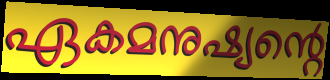
ഏകമനുഷ്യന്റെ